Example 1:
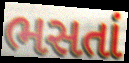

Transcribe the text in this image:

ભસતાં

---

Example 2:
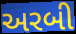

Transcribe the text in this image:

અરબી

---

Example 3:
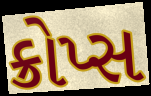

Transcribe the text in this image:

ક્રોપ્સ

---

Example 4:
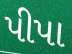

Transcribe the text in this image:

પીપા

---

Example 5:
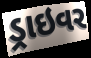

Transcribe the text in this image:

ડ્રાઇવર